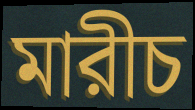
মারীচ